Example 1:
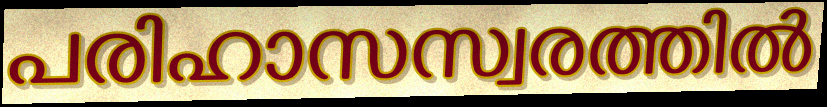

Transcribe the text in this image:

പരിഹാസസ്വരത്തിൽ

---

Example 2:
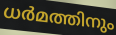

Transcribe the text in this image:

ധർമത്തിനും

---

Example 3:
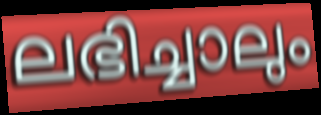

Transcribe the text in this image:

ലഭിച്ചാലും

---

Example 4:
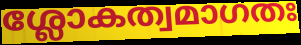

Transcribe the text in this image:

ശ്ലോകത്വമാഗതഃ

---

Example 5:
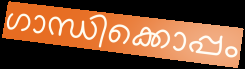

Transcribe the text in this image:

ഗാന്ധിക്കൊപ്പം